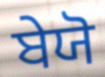
ਬੇਯੋ